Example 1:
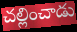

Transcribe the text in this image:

చల్లించాడు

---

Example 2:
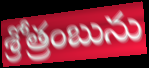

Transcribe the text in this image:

శ్రోత్రంబును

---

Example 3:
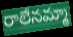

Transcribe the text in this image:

రాలేనమ్మా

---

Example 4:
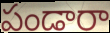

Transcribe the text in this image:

పండారా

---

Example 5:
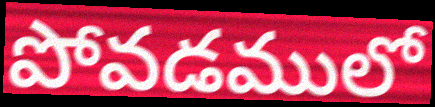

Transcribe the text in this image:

పోవడములో